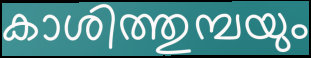
കാശിത്തുമ്പയും